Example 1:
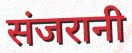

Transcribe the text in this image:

संजरानी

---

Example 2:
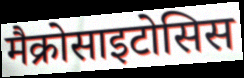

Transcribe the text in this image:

मैक्रोसाइटोसिस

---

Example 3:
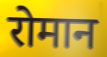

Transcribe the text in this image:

रोमान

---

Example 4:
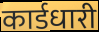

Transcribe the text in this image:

कार्डधारी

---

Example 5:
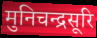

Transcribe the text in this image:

मुनिचन्द्रसूरि